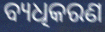
ବ୍ୟଧିକରଣ